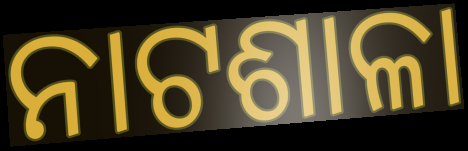
ନାଟଶାଳା